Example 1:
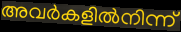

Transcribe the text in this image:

അവർകളിൽനിന്ന്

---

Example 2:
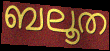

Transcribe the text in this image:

ബലൂത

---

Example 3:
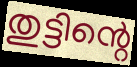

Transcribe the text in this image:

തുട്ടിന്റെ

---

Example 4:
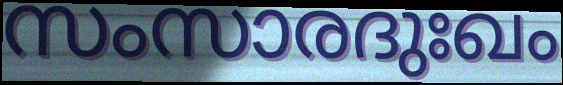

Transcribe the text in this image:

സംസാരദുഃഖം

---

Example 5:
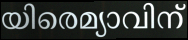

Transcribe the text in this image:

യിരെമ്യാവിന്